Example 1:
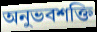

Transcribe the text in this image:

অনুভবশক্তি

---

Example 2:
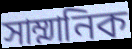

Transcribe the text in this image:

সাম্মানিক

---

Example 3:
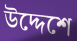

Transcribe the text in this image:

উদ্দেশে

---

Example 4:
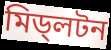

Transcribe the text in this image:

মিড্লটন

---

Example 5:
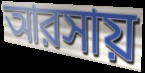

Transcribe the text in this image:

আরসায়